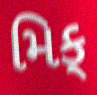
મિક્